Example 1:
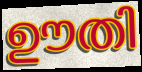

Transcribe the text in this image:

ഊതി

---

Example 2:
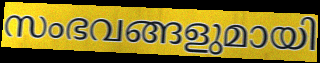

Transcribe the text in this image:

സംഭവങ്ങളുമായി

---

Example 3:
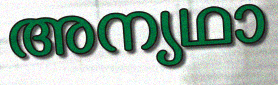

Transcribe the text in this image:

അന്യഥാ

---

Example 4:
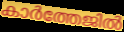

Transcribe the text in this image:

കാർത്തേജിൽ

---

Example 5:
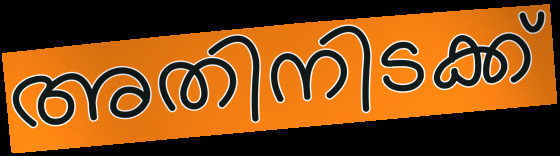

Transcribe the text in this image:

അതിനിടക്ക്